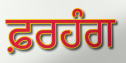
ਫ਼ਰਹੰਗ